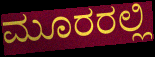
ಮೂರರಲ್ಲಿ